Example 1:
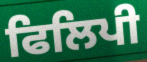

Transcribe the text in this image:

ਫਿਲਿਪੀ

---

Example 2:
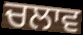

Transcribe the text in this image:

ਚਲਾਵ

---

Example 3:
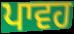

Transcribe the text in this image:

ਪਾਵਹ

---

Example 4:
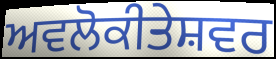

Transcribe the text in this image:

ਅਵਲੋਕੀਤੇਸ਼ਵਰ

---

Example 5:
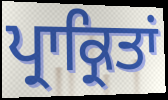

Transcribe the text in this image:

ਪ੍ਰਾਕ੍ਰਿਤਾਂ